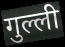
गुल्ली